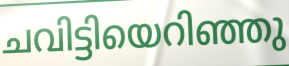
ചവിട്ടിയെറിഞ്ഞു